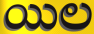
యిల